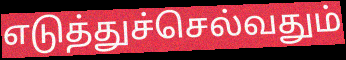
எடுத்துச்செல்வதும்